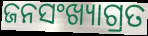
ଜନସଂଖ୍ୟାଗ୍ରତ